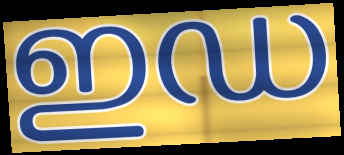
ഇഡ